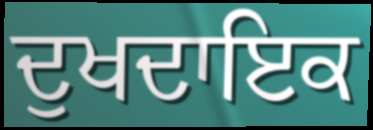
ਦੁਖਦਾਇਕ